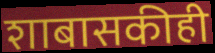
शाबासकीही